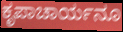
ಕೃಪಾಚಾರ್ಯನೂ